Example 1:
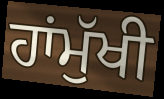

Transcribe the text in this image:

ਹਾਂਮੁੱਖੀ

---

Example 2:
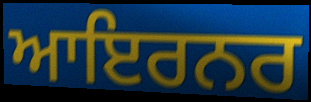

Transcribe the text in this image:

ਆਇਰਨਰ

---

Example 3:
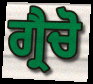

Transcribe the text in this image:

ਗ੍ਰੈਚੋ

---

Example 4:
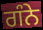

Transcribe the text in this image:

ਗੰਨੇ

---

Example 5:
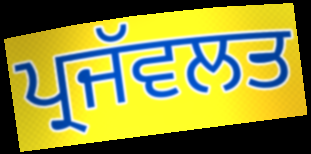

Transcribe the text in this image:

ਪ੍ਰਜੱਵਲਤ